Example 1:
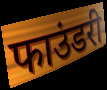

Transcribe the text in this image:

फाउंडरी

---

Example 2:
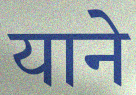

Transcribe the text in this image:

याने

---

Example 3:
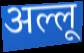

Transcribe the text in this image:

अल्लू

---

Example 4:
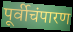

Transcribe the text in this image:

पूर्वीचंपारण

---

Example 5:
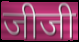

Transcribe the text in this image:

जीजी